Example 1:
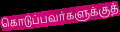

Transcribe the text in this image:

கொடுப்பவர்களுக்குத்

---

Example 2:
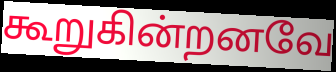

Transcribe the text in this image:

கூறுகின்றனவே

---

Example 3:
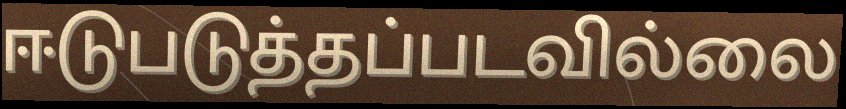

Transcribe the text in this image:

ஈடுபடுத்தப்படவில்லை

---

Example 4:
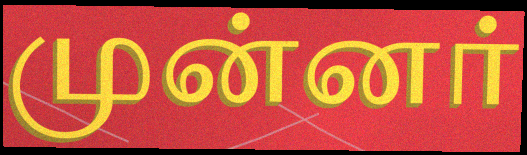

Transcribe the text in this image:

முன்னர்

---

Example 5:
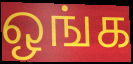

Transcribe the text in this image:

ஒங்க